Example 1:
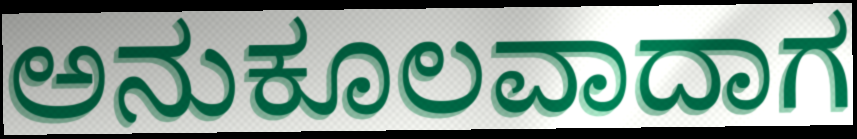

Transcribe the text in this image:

ಅನುಕೂಲವಾದಾಗ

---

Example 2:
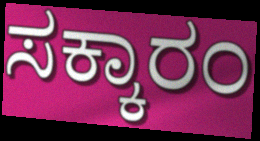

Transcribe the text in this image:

ಸಕ್ಕಾರಂ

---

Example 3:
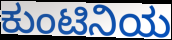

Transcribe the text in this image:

ಕುಂಟಿನಿಯ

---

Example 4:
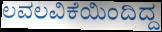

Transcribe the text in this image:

ಲವಲವಿಕೆಯಿಂದಿದ್ದ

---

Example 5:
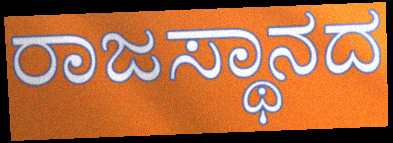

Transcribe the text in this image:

ರಾಜಸ್ಥಾನದ